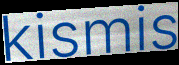
kismis